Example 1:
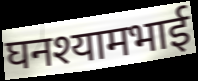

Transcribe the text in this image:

घनश्यामभाई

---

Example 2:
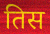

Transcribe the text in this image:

तिस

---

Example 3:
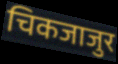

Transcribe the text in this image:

चिकजाजुर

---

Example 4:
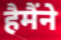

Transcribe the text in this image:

हैमैंने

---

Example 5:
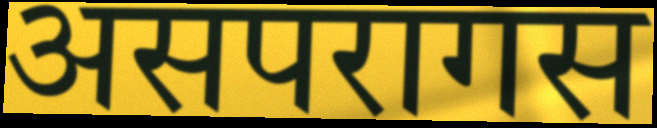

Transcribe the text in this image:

असपरागस